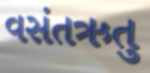
વસંતઋતુ